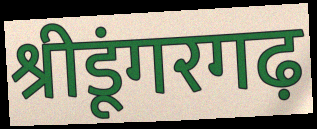
श्रीडूंगरगढ़